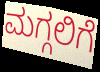
ಮಗ್ಗಲಿಗೆ